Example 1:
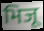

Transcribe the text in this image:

भिजू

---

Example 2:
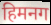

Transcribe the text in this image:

हिमनग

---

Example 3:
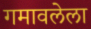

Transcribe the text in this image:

गमावलेला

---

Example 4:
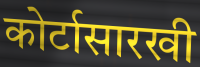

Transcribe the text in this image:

कोर्टासारखी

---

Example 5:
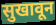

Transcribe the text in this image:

सुखावून